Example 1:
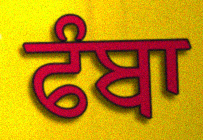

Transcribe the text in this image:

ਫੰਬਾ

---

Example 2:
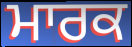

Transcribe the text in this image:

ਮਾਰਕ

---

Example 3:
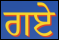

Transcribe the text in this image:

ਗਏ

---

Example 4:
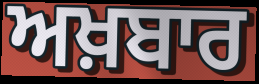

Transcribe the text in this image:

ਅਖ਼ਬਾਰ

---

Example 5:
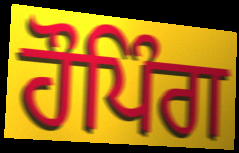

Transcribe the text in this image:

ਹੌਪਿੰਗ